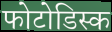
फोटोडिस्क